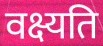
वक्ष्यति